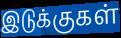
இடுக்குகள்